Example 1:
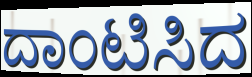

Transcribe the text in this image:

ದಾಂಟಿಸಿದ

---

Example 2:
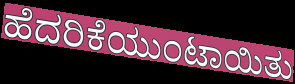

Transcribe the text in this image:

ಹೆದರಿಕೆಯುಂಟಾಯಿತು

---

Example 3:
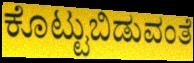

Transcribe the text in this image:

ಕೊಟ್ಟುಬಿಡುವಂತೆ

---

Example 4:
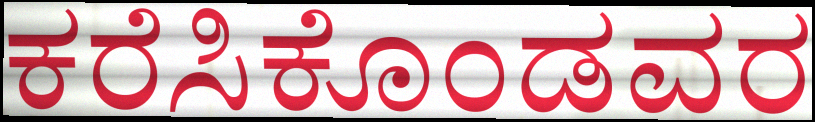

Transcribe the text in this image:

ಕರೆಸಿಕೊಂಡವರ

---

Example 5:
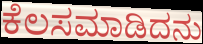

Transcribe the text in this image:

ಕೆಲಸಮಾಡಿದನು